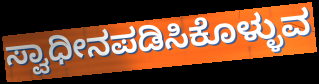
ಸ್ವಾಧೀನಪಡಿಸಿಕೊಳ್ಳುವ